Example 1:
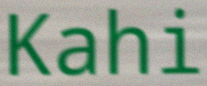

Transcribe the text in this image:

Kahi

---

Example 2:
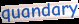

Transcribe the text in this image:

quandary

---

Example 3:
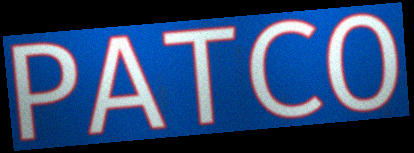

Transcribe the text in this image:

PATCO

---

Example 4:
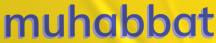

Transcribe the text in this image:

muhabbat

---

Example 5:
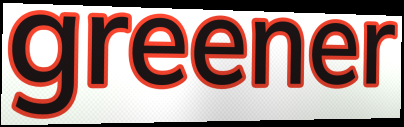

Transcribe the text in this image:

greener